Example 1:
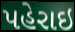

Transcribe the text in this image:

પહેરાઇ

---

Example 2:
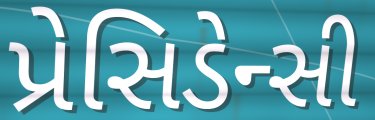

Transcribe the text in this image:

પ્રેસિડેન્સી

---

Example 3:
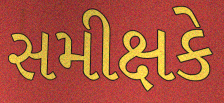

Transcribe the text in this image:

સમીક્ષકે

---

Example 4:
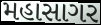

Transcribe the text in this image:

મહાસાગર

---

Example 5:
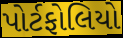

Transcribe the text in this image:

પોર્ટફોલિયો